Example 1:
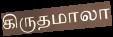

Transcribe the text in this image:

கிருதமாலா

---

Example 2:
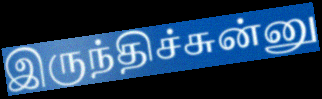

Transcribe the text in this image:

இருந்திச்சுன்னு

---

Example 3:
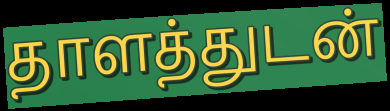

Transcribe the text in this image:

தாளத்துடன்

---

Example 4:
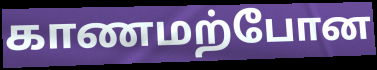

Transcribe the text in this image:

காணமற்போன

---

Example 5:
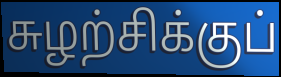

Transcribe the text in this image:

சுழற்சிக்குப்